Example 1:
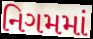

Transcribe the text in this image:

નિગમમાં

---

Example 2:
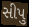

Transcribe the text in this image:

સીપુ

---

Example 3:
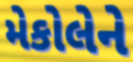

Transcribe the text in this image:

મેકોલેને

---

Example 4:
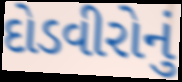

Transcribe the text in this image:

દોડવીરોનું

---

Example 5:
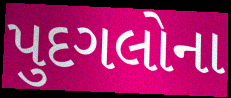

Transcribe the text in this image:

પુદગલોના